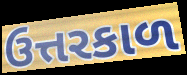
ઉત્તરકાળ